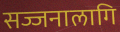
सज्जनालागि